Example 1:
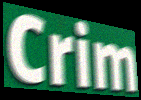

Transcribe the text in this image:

Crim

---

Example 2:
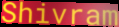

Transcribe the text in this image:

Shivram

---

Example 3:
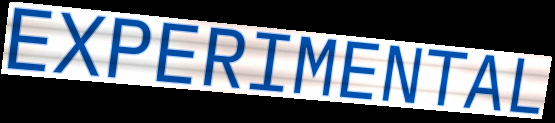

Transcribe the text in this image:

EXPERIMENTAL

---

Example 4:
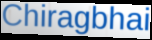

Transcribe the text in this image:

Chiragbhai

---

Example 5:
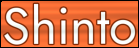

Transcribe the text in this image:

Shinto